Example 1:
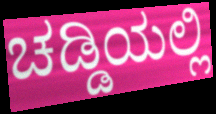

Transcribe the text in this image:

ಚಡ್ಡಿಯಲ್ಲಿ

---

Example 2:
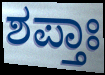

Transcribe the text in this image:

ಶಪ್ತಾಃ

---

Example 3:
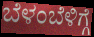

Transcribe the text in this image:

ಬೆಳಂಬೆಳಿಗ್ಗೆ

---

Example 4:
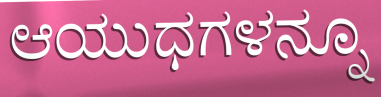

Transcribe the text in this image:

ಆಯುಧಗಳನ್ನೂ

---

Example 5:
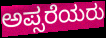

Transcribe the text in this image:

ಅಪ್ಸರೆಯರು